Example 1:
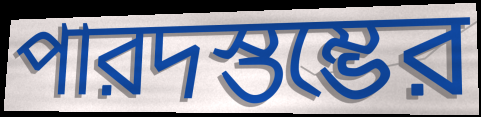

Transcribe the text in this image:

পারদস্তম্ভের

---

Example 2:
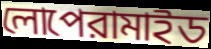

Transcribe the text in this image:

লোপেরামাইড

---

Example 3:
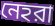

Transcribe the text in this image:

নেহরা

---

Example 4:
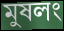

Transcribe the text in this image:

মুষলং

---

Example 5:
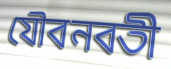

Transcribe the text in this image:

যৌবনবতী